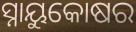
ସ୍ନାୟୁକୋଷର